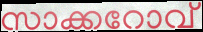
സാക്കറോവ്